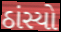
ઠાંસ્યો